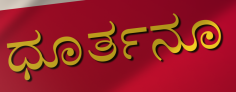
ಧೂರ್ತನೂ